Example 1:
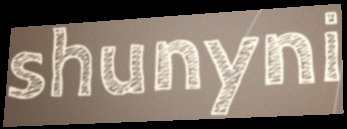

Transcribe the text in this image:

shunyni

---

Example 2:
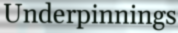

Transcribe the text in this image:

Underpinnings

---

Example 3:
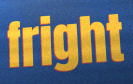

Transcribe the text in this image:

fright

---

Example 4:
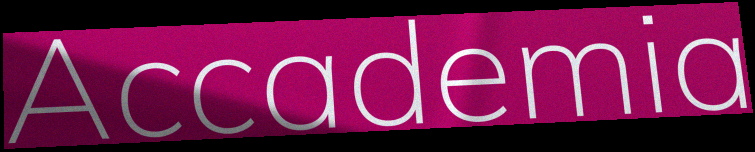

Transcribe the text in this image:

Accademia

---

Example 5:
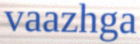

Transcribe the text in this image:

vaazhga